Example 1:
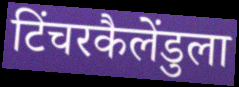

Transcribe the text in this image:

टिंचरकैलेंडुला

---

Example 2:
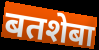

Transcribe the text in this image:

बतशेबा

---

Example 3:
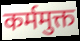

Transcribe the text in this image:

कर्ममुक्त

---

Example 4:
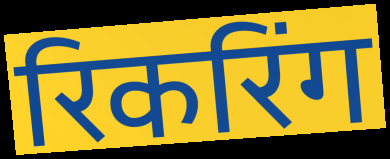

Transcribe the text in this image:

रिकरिंग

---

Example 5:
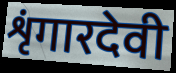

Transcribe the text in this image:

शृंगारदेवी